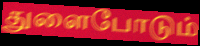
துளைபோடும்